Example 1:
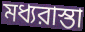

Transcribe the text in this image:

মধ্যরাস্তা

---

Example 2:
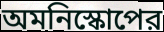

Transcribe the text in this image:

অমনিস্কোপের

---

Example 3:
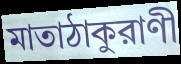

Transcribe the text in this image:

মাতাঠাকুরাণী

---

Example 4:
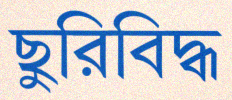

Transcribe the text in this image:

ছুরিবিদ্ধ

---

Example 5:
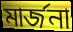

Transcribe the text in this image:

মার্জনা